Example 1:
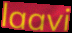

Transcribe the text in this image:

laavi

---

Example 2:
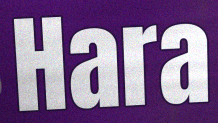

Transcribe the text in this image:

Hara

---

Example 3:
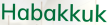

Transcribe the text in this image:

Habakkuk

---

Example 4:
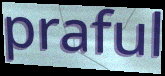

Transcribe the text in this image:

praful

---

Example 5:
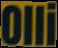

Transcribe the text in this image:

Olli